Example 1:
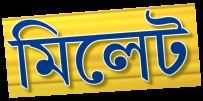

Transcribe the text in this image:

মিলেট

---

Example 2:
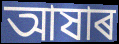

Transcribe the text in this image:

আষাৰ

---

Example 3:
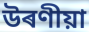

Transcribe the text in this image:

উৰণীয়া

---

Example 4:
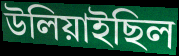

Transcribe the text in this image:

উলিয়াইছিল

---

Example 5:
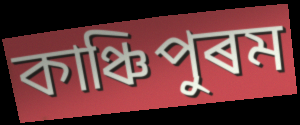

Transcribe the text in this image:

কাঞ্চিপুৰম